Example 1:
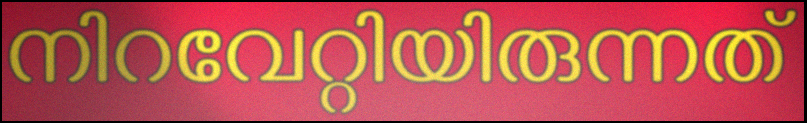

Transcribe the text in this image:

നിറവേറ്റിയിരുന്നത്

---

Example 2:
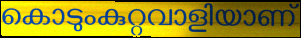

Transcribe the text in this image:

കൊടുംകുറ്റവാളിയാണ്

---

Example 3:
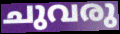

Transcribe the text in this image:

ചുവരു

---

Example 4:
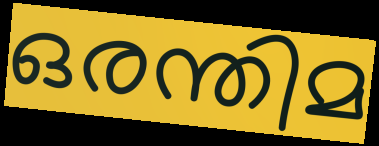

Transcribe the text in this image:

ഒരന്തിമ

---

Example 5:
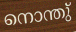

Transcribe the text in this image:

നൊന്തു്